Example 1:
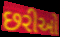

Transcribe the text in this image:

છરીઓ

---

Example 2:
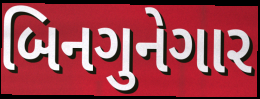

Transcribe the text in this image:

બિનગુનેગાર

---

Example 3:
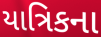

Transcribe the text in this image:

યાત્રિકના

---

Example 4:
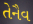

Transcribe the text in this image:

તેનૈવ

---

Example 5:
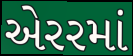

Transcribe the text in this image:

એરરમાં